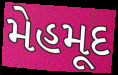
મેહમૂદ